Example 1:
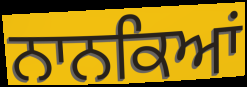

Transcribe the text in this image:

ਨਾਨਕਿਆਂ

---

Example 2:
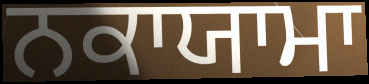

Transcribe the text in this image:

ਨਕਾਯਾਮਾ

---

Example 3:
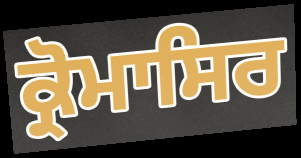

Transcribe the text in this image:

ਕ੍ਰੋਮਾਸਿਰ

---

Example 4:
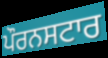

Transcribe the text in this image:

ਪੌਰਨਸਟਾਰ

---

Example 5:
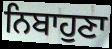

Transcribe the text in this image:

ਨਿਬਾਹੁਣਾ